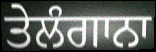
ਤੇਲੰਗਾਨਾ